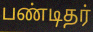
பண்டிதர்